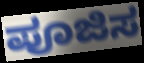
ಪೂಜಿಸ